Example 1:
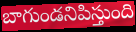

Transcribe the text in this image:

బాగుండనిపిస్తుంది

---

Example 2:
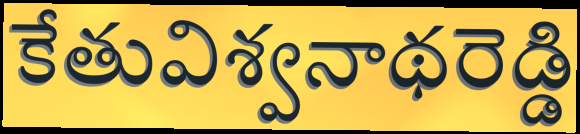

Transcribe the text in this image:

కేతువిశ్వనాథరెడ్డి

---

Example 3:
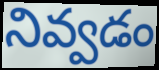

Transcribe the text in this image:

నివ్వడం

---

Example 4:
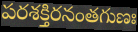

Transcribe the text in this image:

పరశక్తిరనంతగుణః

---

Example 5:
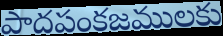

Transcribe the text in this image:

పాదపంకజములకు